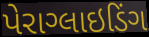
પેરાગ્લાઇડિંગ